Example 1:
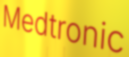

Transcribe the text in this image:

Medtronic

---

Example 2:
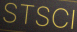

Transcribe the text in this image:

STSCI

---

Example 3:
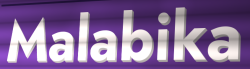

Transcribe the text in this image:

Malabika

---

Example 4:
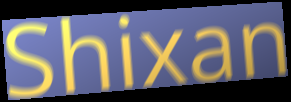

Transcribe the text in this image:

Shixan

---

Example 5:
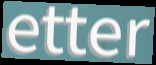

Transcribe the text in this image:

etter